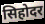
सिहोदर